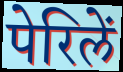
पेरिलें